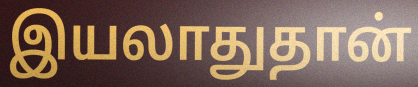
இயலாதுதான்